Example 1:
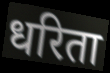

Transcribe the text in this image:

धरिता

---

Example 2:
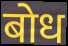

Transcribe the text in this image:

बोध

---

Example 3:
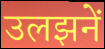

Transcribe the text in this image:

उलझनें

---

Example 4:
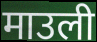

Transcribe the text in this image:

माउली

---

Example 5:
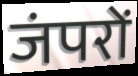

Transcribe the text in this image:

जंपरों